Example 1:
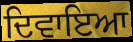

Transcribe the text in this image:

ਦਿਵਾਇਆ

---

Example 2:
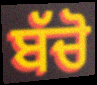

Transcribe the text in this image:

ਬੱਚੋ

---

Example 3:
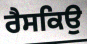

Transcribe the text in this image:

ਰੈਸਕਿਉ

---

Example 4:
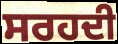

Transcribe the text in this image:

ਸਰਹਦੀ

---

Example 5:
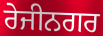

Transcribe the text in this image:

ਰੇਜੀਨਗਰ